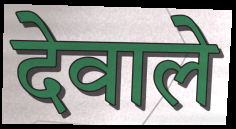
देवाले